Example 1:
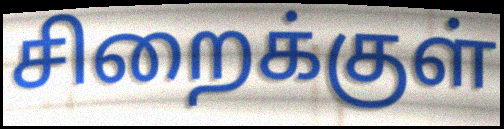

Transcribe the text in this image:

சிறைக்குள்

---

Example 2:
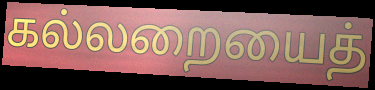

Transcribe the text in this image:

கல்லறையைத்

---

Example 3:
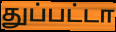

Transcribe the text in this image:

துப்பட்டா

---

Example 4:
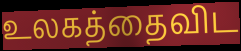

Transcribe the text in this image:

உலகத்தைவிட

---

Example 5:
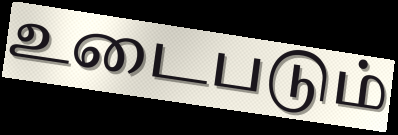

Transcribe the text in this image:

உடைபடும்